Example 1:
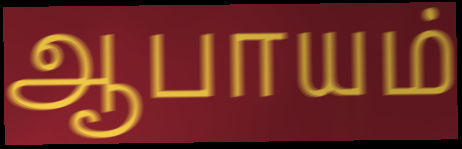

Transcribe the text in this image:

ஆபாயம்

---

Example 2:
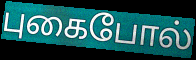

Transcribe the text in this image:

புகைபோல்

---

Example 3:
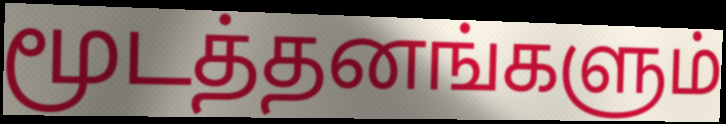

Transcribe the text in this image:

மூடத்தனங்களும்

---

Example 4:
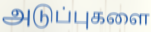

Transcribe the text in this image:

அடுப்புகளை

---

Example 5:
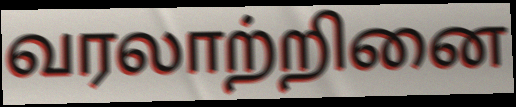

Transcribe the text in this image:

வரலாற்றினை